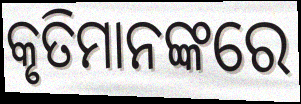
କୃତିମାନଙ୍କରେ